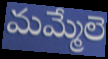
మమ్మేలె